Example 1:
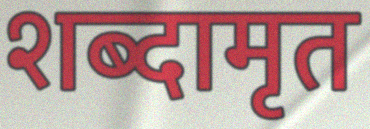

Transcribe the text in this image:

शब्दामृत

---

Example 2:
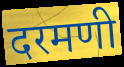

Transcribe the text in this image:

दरमणी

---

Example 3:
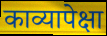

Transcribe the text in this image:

काव्यापेक्षा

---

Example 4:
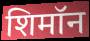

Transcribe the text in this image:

शिमॉन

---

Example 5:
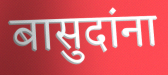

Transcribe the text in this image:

बासुदांना